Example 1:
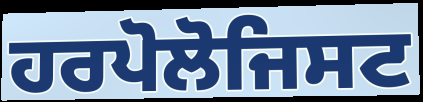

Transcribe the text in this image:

ਹਰਪੋਲੋਜਿਸਟ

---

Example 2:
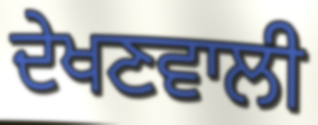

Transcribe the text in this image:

ਦੇਖਣਵਾਲੀ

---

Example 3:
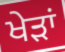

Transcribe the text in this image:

ਖੇੜਾਂ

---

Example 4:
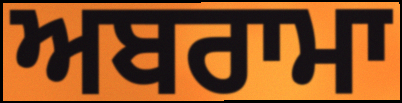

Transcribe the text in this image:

ਅਬਰਾਮਾ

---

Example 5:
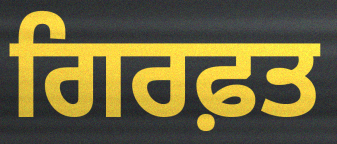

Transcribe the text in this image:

ਗਿਰਫ਼ਤ